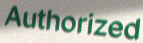
Authorized